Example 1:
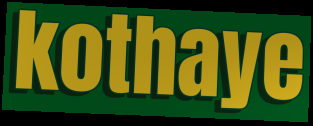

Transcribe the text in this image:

kothaye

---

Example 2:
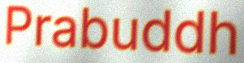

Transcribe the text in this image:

Prabuddh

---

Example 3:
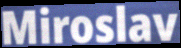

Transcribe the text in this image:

Miroslav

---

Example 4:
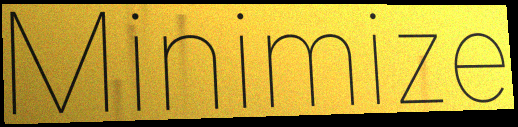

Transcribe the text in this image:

Minimize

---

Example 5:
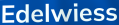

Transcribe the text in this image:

Edelwiess